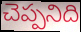
చెప్పనిది